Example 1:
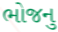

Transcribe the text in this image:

ભોજનુ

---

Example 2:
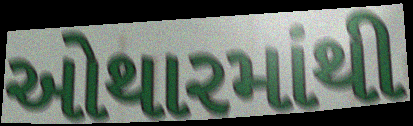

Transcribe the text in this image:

ઓથારમાંથી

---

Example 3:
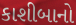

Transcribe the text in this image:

કાશીબાનો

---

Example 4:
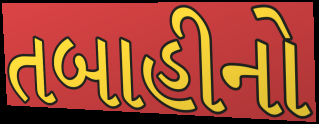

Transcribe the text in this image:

તબાહીનો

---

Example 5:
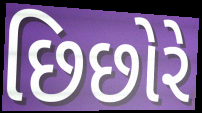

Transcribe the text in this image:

છિછોરે